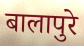
बालापुरे